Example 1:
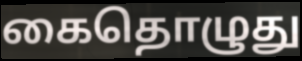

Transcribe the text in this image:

கைதொழுது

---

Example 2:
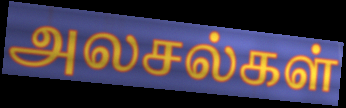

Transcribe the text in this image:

அலசல்கள்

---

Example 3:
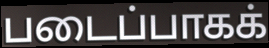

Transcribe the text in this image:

படைப்பாகக்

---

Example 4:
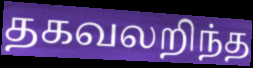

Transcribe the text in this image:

தகவலறிந்த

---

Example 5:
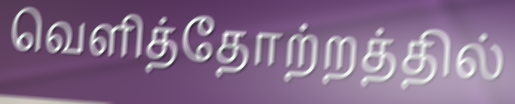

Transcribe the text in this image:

வெளித்தோற்றத்தில்